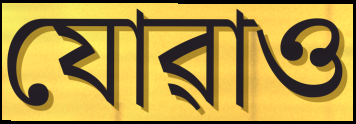
যোৱাও